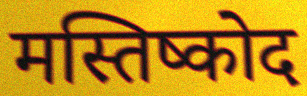
मस्तिष्कोद